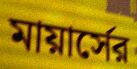
মায়ার্সের